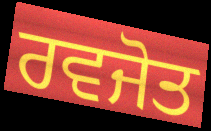
ਰਵਜੋਤ